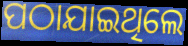
ପଠାଯାଇଥିଲେ